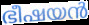
ഭീഷയൻ